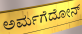
ಅರ್ಮಗೆದೋನ್